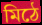
মিঠে